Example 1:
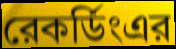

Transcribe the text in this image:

রেকর্ডিংএর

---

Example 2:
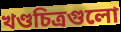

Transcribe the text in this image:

খণ্ডচিত্রগুলো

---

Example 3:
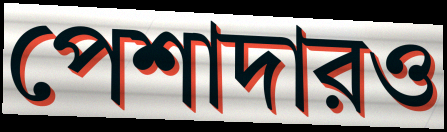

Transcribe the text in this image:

পেশাদারও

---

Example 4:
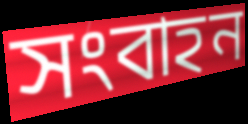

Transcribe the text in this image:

সংবাহন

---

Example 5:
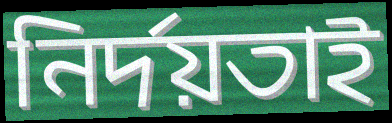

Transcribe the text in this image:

নির্দয়তাই